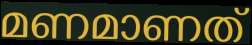
മണമാണത്